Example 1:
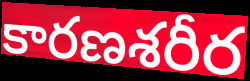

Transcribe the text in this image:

కారణశరీర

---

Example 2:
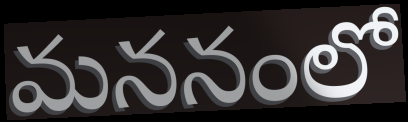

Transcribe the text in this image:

మననంలో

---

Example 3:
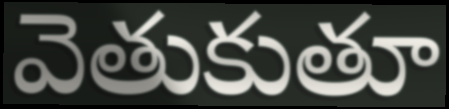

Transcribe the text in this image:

వెతుకుతూ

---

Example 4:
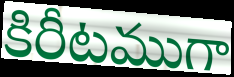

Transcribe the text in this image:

కిరీటముగా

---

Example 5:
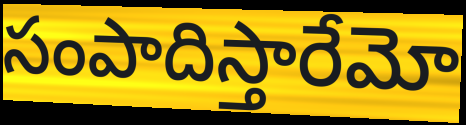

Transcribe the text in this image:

సంపాదిస్తారేమో